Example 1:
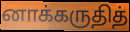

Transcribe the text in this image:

னாக்கருதித்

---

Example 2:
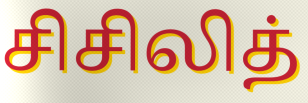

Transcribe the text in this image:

சிசிலித்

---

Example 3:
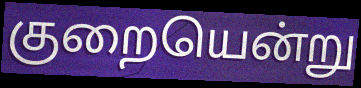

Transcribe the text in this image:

குறையென்று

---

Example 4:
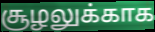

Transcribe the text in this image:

சூழலுக்காக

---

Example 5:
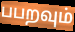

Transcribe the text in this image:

பபறவும்